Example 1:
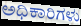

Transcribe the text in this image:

ಅಧಿಕಾರಿಗಳು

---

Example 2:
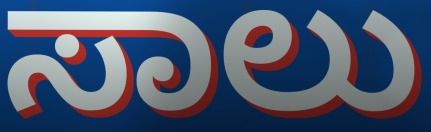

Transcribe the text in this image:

ಸಾಲು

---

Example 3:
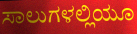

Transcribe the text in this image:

ಸಾಲುಗಳಲ್ಲಿಯೂ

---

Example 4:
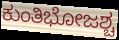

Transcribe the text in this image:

ಕುಂತಿಭೋಜಶ್ಚ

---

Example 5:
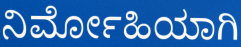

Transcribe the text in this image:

ನಿರ್ಮೋಹಿಯಾಗಿ